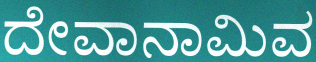
ದೇವಾನಾಮಿವ